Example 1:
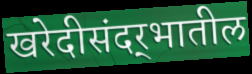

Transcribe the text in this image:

खरेदीसंदर्भातील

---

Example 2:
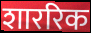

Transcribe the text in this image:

शाररिक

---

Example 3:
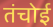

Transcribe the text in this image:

तंचोई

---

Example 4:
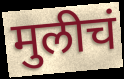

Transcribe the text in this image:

मुलीचं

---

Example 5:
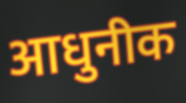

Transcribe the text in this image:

आधुनीक